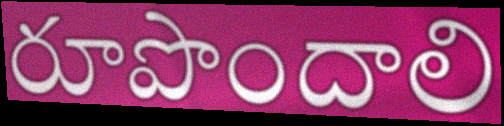
రూపొందాలి